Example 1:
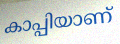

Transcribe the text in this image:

കാപ്പിയാണ്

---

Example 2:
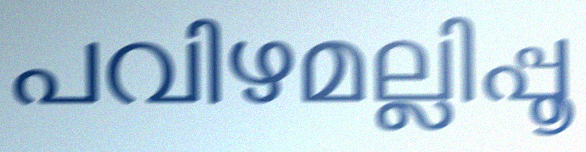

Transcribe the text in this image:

പവിഴമല്ലിപ്പൂ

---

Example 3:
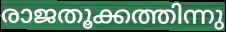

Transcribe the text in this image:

രാജതൂക്കത്തിന്നു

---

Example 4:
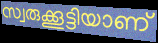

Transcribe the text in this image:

സ്വരുക്കൂട്ടിയാണ്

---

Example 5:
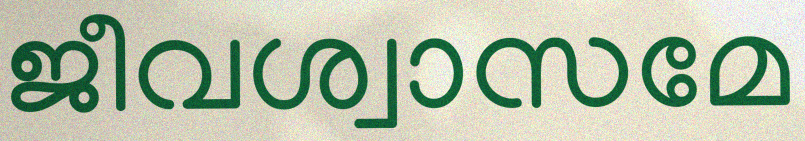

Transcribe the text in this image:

ജീവശ്വാസമേ